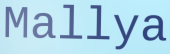
Mallya